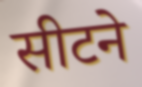
सीटने